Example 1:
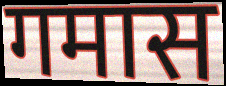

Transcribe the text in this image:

गमास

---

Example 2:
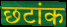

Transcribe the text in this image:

छटांक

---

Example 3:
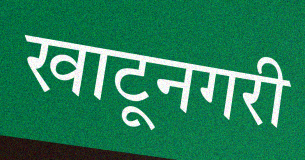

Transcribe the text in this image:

खाटूनगरी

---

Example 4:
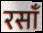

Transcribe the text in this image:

रसाँ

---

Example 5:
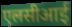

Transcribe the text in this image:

एलसीआई